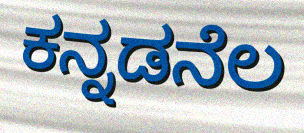
ಕನ್ನಡನೆಲ